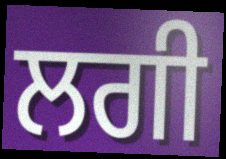
ਲਗੀ